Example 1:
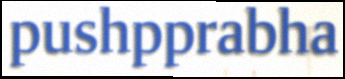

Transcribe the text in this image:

pushpprabha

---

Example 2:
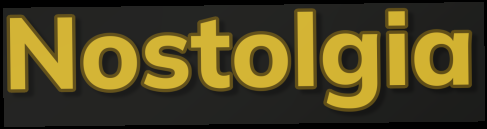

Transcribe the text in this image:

Nostolgia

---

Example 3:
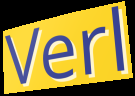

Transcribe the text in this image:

Verl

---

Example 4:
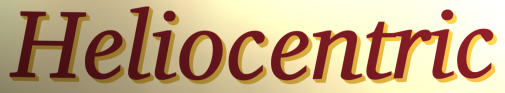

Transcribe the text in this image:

Heliocentric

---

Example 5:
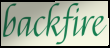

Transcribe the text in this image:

backfire